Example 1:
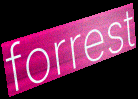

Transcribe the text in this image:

forrest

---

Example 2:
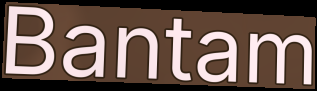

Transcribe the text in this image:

Bantam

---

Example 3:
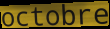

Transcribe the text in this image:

octobre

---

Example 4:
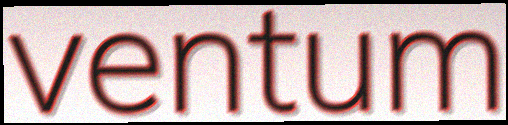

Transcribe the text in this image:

ventum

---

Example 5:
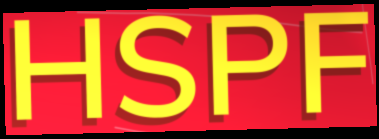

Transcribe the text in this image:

HSPF